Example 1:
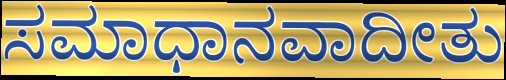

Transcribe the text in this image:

ಸಮಾಧಾನವಾದೀತು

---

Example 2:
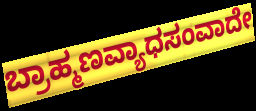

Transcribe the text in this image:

ಬ್ರಾಹ್ಮಣವ್ಯಾಧಸಂವಾದೇ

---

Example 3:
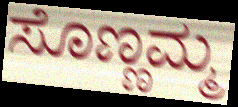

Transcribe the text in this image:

ಸೊಣ್ಣಮ್ಮ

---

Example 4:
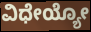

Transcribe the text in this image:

ವಿಧೇಯ್ಯೋ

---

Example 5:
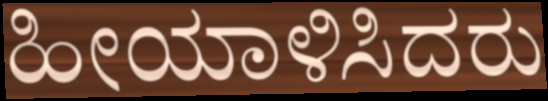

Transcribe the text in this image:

ಹೀಯಾಳಿಸಿದರು